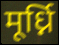
मूर्ध्नि